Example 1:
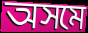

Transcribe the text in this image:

অসমে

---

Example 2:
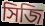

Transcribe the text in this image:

সিজি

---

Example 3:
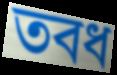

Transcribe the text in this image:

তবধ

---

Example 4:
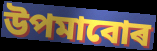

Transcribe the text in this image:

উপমাবোৰ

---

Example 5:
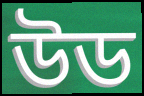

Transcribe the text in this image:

উড